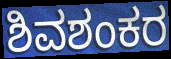
ಶಿವಶಂಕರ